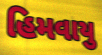
હિમવાયુ